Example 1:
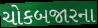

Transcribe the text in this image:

ચોકબજારના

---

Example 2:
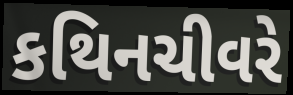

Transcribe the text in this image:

કથિનચીવરે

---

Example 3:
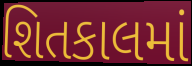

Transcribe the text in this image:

શિતકાલમાં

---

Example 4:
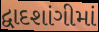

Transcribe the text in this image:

દ્વાદશાંગીમાં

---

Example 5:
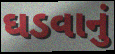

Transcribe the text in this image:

ઘડવાનું